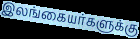
இலங்கையர்களுக்கு